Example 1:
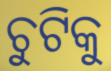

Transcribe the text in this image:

ଚୁଟିକୁ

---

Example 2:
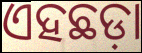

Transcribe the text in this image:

ଏହଛଡ଼ା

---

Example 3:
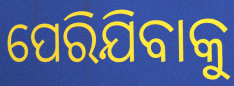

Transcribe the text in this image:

ପେରିଯିବାକୁ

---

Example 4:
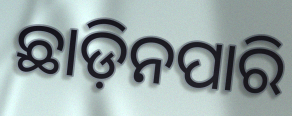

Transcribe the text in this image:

ଛାଡ଼ିନପାରି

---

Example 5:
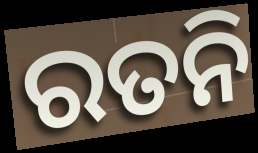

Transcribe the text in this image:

ରତନି